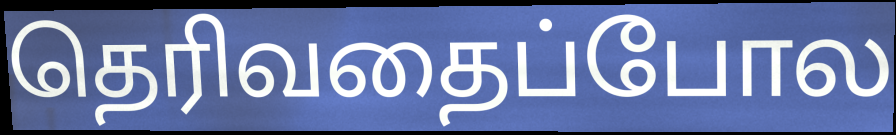
தெரிவதைப்போல